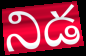
నిడ